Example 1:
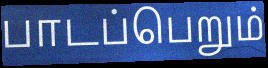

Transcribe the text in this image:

பாடப்பெறும்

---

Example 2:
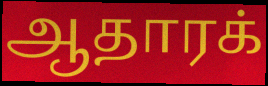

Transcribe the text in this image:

ஆதாரக்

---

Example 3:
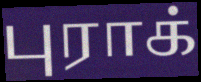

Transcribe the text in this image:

புராக்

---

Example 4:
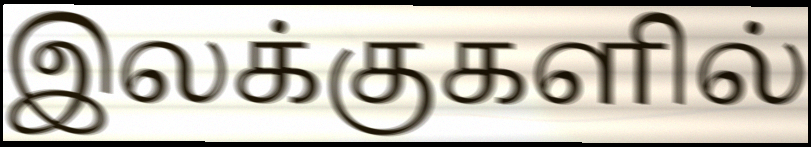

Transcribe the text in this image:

இலக்குகளில்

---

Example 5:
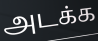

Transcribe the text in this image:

அடக்க